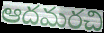
ఆదమరచి